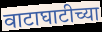
वाटाघाटीच्या